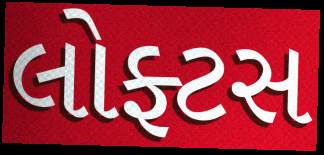
લોફ્ટસ